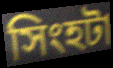
সিংহটা